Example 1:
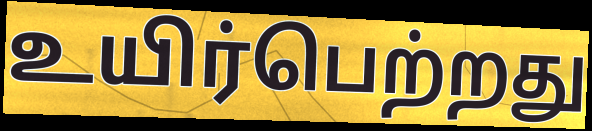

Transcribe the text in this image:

உயிர்பெற்றது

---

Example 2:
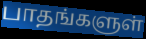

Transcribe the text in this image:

பாதங்களுள்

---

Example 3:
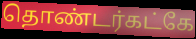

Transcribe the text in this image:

தொண்டர்கட்கே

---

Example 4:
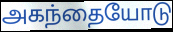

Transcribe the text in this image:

அகந்தையோடு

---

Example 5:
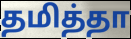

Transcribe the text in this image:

தமித்தா